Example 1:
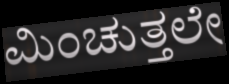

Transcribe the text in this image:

ಮಿಂಚುತ್ತಲೇ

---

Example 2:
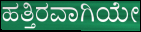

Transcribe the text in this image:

ಹತ್ತಿರವಾಗಿಯೇ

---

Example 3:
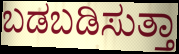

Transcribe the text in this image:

ಬಡಬಡಿಸುತ್ತಾ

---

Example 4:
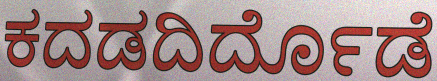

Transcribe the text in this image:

ಕದಡದಿರ್ದೊಡೆ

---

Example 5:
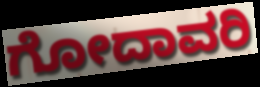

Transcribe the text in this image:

ಗೋದಾವರಿ